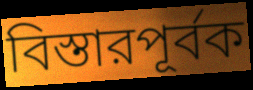
বিস্তারপূর্বক